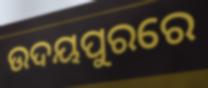
ଉଦୟପୁରରେ